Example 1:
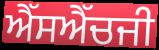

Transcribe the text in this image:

ਐੱਸਐੱਚਜੀ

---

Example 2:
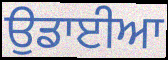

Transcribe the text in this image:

ਉਡਾਈਆ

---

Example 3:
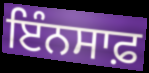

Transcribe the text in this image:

ਇੰਨਸਾਫ਼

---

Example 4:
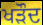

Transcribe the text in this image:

ਖੜੌਦ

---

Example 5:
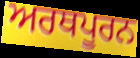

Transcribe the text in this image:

ਅਰਥਪੂਰਨ